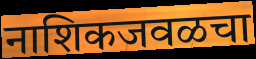
नाशिकजवळचा